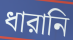
ধারানি